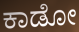
ಕಾಡೋ